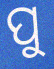
ପୁ